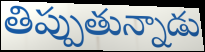
తిప్పుతున్నాడు